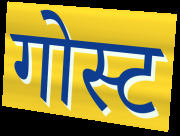
गोस्ट